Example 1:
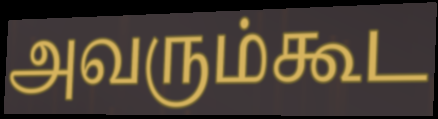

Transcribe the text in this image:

அவரும்கூட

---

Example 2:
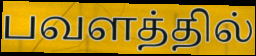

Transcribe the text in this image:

பவளத்தில்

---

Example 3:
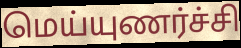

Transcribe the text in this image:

மெய்யுணர்ச்சி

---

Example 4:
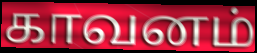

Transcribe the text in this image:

காவனம்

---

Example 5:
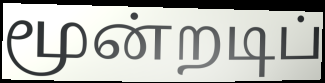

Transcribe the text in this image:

மூன்றடிப்